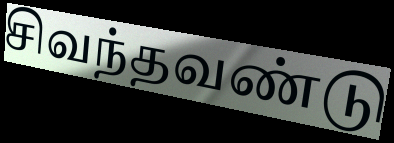
சிவந்தவண்டு